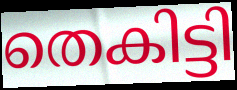
തെകിട്ടി